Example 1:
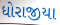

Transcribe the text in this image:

ધોરાજીયા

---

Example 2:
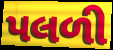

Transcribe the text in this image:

પલળી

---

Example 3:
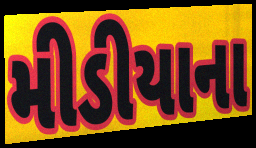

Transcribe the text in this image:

મીડીયાના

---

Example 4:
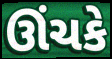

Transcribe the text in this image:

ઊંચકે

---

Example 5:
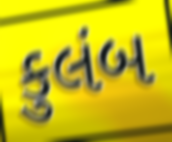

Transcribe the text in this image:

કુલંબ